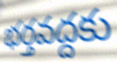
భర్తవద్దకు